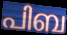
പിബ